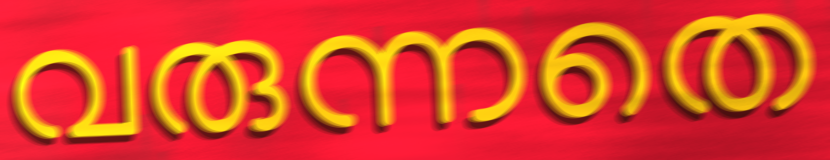
വരുന്നതെ